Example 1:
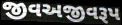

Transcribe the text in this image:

જીવઅજીવરૂપ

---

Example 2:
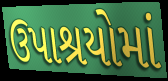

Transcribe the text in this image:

ઉપાશ્રયોમાં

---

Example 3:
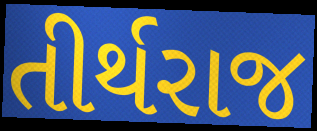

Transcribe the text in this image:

તીર્થરાજ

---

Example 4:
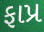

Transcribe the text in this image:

ફાપ્ર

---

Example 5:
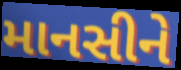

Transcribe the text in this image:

માનસીને